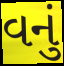
વનું